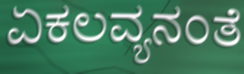
ಏಕಲವ್ಯನಂತೆ